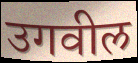
उगवील